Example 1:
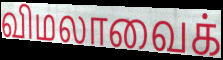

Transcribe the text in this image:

விமலாவைக்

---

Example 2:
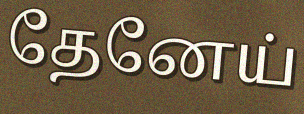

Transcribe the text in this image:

தேனேய்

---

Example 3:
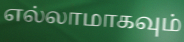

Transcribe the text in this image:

எல்லாமாகவும்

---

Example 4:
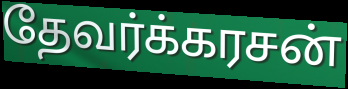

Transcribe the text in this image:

தேவர்க்கரசன்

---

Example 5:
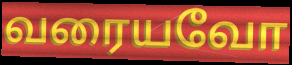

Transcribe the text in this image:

வரையவோ